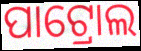
ପାଟ୍ରୋଲ